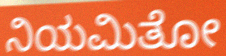
ನಿಯಮಿತೋ